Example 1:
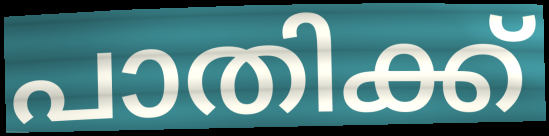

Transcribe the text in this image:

പാതിക്ക്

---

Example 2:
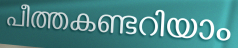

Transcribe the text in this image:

പീത്തകണ്ടറിയാം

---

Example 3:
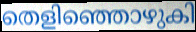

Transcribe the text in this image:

തെളിഞ്ഞൊഴുകി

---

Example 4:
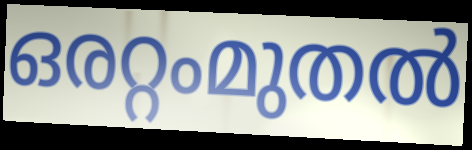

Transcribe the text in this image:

ഒരറ്റംമുതൽ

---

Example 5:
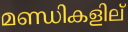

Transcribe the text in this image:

മണ്ഡികളില്